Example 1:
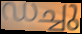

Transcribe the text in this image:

ഡച്ചു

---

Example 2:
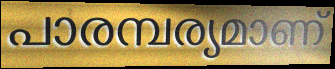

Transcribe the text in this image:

പാരമ്പര്യമാണ്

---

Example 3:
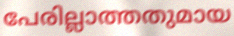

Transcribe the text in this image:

പേരില്ലാത്തതുമായ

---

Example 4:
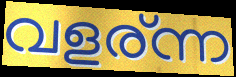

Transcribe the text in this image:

വളര്ന്ന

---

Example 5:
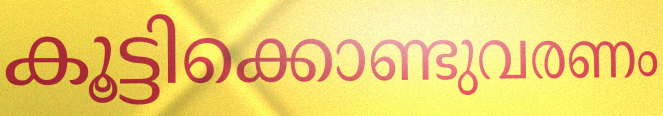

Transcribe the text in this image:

കൂട്ടിക്കൊണ്ടുവരണം